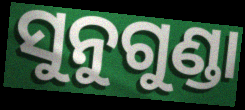
ସୁନୁଗୁଣ୍ଡା